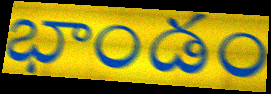
భాండం